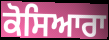
ਕੋਸਿਆਰਾ